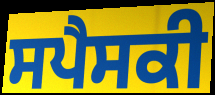
ਸਪੈਸਕੀ